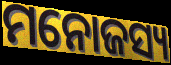
ମନୋଜସ୍ୟ